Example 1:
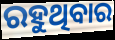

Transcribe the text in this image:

ରହୁଥିବାର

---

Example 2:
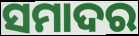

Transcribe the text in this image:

ସମାଦର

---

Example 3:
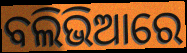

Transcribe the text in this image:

ବଲିଭିଆରେ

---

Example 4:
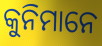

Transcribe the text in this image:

କୁନିମାନେ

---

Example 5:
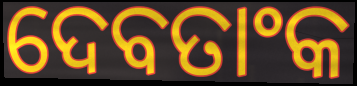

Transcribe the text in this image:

ଦେବତାଂକ